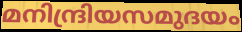
മനിന്ദ്രിയസമുദയം